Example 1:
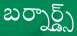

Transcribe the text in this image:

బర్నార్డ్స్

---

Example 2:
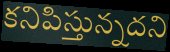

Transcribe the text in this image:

కనిపిస్తున్నదని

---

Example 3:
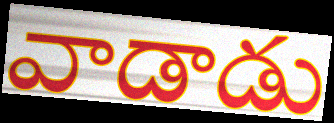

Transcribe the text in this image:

వాడాడు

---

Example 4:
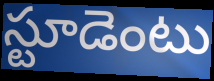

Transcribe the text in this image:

స్టూడెంటు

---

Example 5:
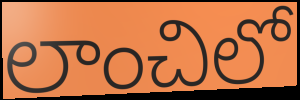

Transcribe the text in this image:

లాంచిలో